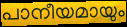
പാനീയമായും